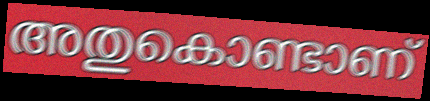
അതുകൊണ്ടാണ്